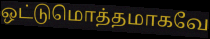
ஒட்டுமொத்தமாகவே